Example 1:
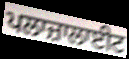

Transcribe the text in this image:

ਪਲਾਜ਼ਾਲਾਈਟ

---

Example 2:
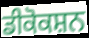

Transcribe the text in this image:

ਡੀਕੋਕਸ਼ਨ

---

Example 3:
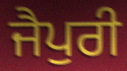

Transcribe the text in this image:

ਜੈਪੁਰੀ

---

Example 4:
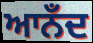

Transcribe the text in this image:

ਆਨਁਦ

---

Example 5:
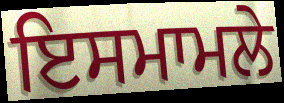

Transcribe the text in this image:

ਇਸਮਾਮਲੇ